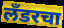
लँडरचा